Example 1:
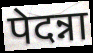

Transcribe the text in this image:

पेदन्ना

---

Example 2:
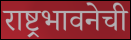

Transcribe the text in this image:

राष्ट्रभावनेची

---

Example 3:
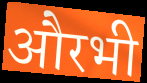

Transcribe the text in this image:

औरभी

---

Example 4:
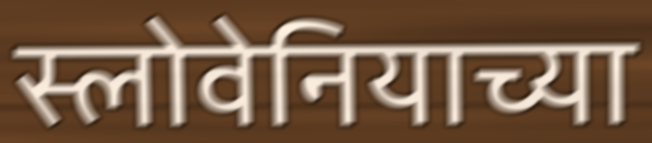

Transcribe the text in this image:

स्लोवेनियाच्या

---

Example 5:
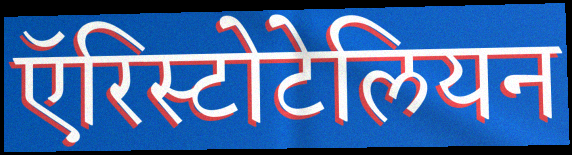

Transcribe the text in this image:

ऍरिस्टोटेलियन